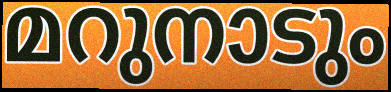
മറുനാടും